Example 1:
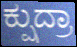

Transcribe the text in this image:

ಕ್ಷುದ್ರಾ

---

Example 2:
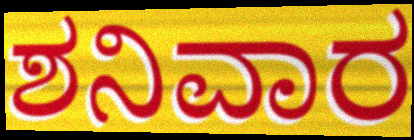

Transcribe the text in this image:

ಶನಿವಾರ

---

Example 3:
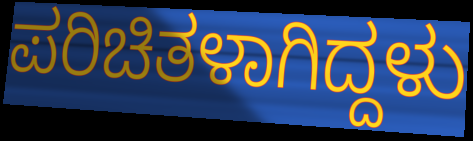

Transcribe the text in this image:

ಪರಿಚಿತಳಾಗಿದ್ದಳು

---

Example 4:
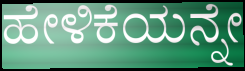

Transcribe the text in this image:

ಹೇಳಿಕೆಯನ್ನೇ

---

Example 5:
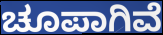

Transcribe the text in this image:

ಚೂಪಾಗಿವೆ